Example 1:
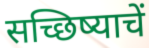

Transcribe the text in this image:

सच्छिष्याचें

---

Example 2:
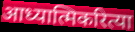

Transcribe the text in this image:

आध्यात्मिकरित्या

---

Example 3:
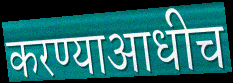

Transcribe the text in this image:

करण्याआधीच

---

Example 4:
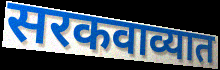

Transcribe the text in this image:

सरकवाव्यात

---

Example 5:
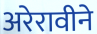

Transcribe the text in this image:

अरेरावीने